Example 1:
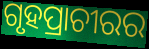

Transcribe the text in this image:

ଗୃହପ୍ରାଚୀରର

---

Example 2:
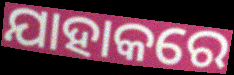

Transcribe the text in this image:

ଯାହାକରେ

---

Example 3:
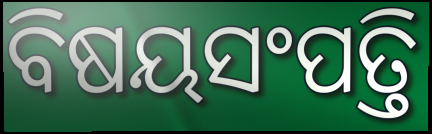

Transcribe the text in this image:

ବିଷୟସଂପତ୍ତି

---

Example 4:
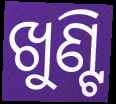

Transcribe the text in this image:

ଖୁଣ୍ଟି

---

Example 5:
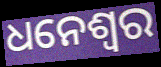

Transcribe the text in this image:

ଧନେଶ୍ବର